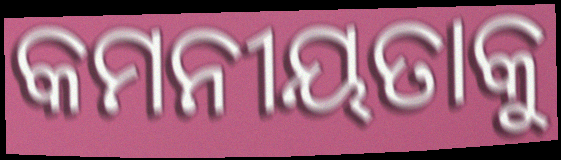
କମନୀୟତାକୁ